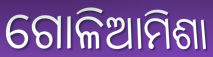
ଗୋଳିଆମିଶା